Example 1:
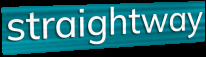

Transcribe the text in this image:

straightway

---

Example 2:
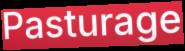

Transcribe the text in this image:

Pasturage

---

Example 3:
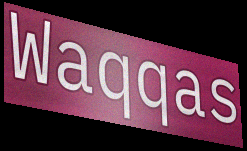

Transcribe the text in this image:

Waqqas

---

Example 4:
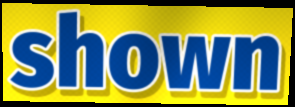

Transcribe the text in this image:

shown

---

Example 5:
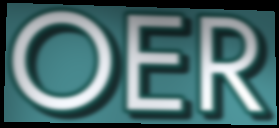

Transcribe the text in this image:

OER